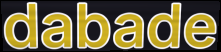
dabade